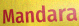
Mandara